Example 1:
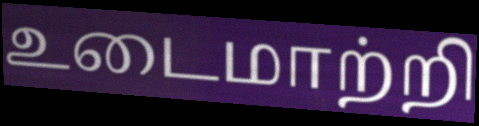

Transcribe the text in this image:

உடைமாற்றி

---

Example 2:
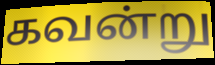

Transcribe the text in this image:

கவன்று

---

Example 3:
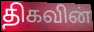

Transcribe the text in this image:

திகவின்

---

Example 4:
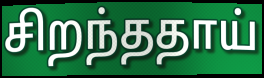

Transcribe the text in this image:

சிறந்ததாய்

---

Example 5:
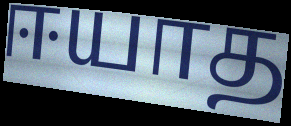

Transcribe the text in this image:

ஈயாத